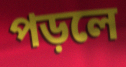
পড়লে